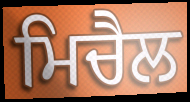
ਮਿਚੈਲ